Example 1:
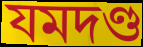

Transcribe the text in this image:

যমদণ্ড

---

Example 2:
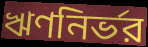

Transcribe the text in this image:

ঋণনির্ভর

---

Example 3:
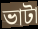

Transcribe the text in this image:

ভাটা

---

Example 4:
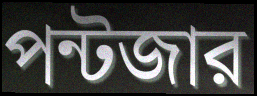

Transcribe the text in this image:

পন্টজার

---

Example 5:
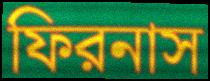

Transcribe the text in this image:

ফিরনাস